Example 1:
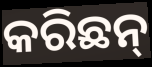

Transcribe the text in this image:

କରିଛନ୍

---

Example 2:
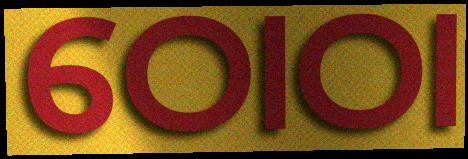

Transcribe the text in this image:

ଠୋଠା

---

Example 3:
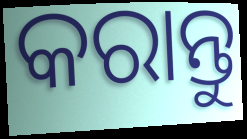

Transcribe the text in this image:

କରାନ୍ତୁ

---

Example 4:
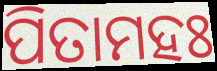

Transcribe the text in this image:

ପିତାମହଃ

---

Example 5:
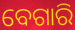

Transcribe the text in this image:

ବେଗାରି